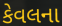
કેવલના